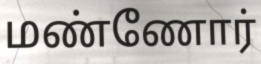
மண்ணோர்